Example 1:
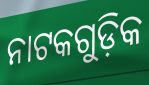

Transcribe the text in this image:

ନାଟକଗୁଡ଼ିକ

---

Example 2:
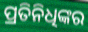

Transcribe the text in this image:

ପ୍ରତିନିଧିଙ୍କର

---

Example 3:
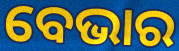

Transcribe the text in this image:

ବେଭାର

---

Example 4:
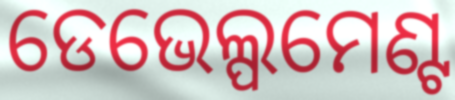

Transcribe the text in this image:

ଡେଭେଲ୍ପମେଣ୍ଟ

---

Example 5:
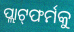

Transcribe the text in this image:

ପ୍ଲାଟ୍‌ଫର୍ମକୁ